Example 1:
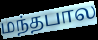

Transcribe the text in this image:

மந்தபால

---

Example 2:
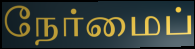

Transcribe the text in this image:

நேர்மைப்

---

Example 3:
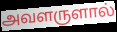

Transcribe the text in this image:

அவளருளால்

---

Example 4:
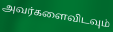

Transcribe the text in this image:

அவர்களைவிடவும்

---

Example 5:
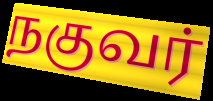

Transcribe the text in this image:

நகுவர்